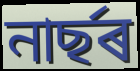
নাৰ্ছৰ